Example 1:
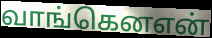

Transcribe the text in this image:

வாங்கெனஎன்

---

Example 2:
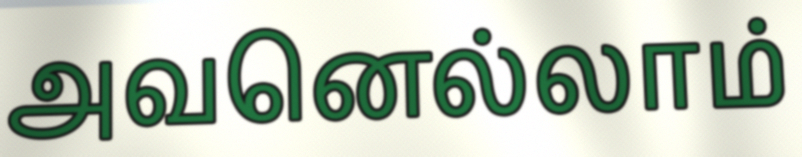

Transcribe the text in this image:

அவனெல்லாம்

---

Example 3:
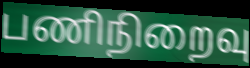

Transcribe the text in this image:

பணிநிறைவு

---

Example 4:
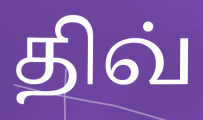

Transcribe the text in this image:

திவ்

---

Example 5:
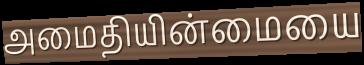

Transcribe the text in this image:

அமைதியின்மையை